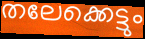
തലേക്കെട്ടും